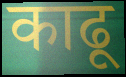
काढू